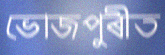
ভোজপুৰীত